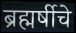
ब्रह्मर्षीचे